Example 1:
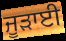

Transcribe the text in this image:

ਜੂੜਾਈ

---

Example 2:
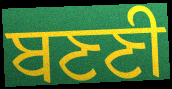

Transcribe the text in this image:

ਬਣਣੀ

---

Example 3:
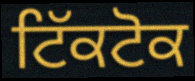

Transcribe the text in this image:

ਟਿੱਕਟੋਕ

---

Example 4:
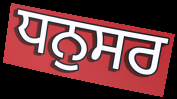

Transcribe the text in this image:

ਧਨੁਸਰ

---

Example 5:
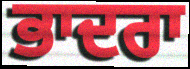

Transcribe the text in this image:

ਭਾਦਰਾ